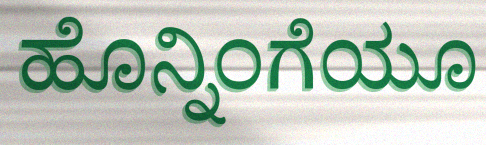
ಹೊನ್ನಿಂಗೆಯೂ